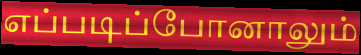
எப்படிப்போனாலும்